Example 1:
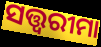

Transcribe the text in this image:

ସତ୍ତ୍ୱରୀମା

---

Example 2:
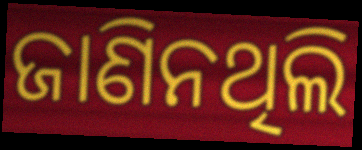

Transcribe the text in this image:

ଜାଣିନଥିଲି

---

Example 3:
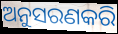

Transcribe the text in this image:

ଅନୁସରଣକରି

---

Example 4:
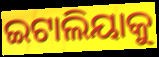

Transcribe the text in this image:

ଇଟାଲିୟାକୁ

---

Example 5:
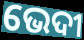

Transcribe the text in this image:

ଭେଦୀ